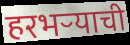
हरभऱ्याची